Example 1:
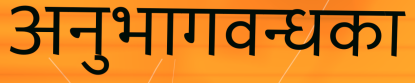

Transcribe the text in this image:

अनुभागवन्धका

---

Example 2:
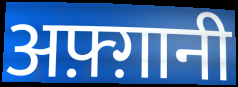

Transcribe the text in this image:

अफ़्ग़ानी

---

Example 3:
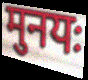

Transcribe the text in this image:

मुनयः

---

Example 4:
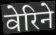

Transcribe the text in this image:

वेरिने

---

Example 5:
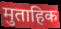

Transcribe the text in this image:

मुताहिक